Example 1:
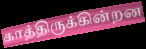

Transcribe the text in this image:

காத்திருக்கின்றன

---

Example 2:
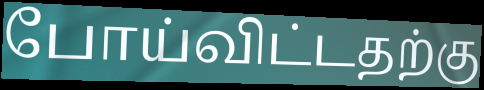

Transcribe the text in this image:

போய்விட்டதற்கு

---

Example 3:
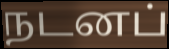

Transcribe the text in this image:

நடனப்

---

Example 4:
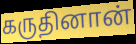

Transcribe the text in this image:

கருதினான்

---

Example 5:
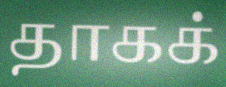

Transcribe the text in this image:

தாகக்